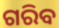
ଗରିବ